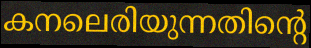
കനലെരിയുന്നതിന്റെ